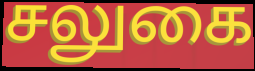
சலுகை